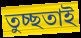
তুচ্ছতাই